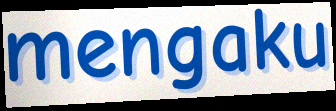
mengaku